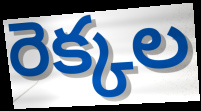
రెక్కల